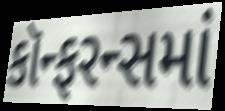
કૉન્ફરન્સમાં